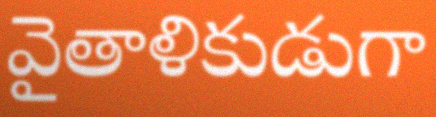
వైతాళికుడుగా